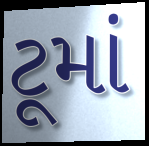
ટૂમાં